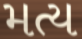
મત્ય